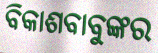
ବିକାଶବାବୁଙ୍କର